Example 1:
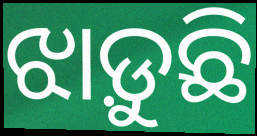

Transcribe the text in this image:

ଝାଡ଼ୁଛି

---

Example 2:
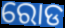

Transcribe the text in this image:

ରୋଡ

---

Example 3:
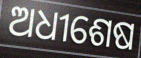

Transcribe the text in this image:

ଅଧୀଶେଷ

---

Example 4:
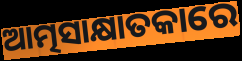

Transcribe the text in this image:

ଆତ୍ମସାକ୍ଷାତକାରେ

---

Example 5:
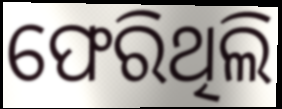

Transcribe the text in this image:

ଫେରିଥିଲି